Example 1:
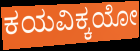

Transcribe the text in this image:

ಕಯವಿಕ್ಕಯೋ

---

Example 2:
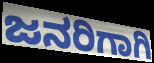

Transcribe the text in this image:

ಜನರಿಗಾಗಿ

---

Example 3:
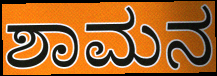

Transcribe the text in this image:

ಶಾಮನ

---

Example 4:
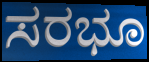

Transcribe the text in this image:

ಸರಭೂ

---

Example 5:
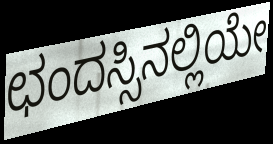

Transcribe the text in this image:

ಛಂದಸ್ಸಿನಲ್ಲಿಯೇ